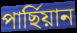
পাৰ্ছিয়ান